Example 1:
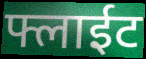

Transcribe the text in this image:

फ्लाईट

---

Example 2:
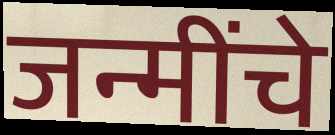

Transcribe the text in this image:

जन्मींचे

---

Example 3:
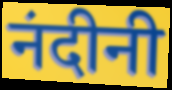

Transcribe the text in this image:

नंदीनी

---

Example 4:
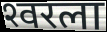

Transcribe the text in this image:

श्वरला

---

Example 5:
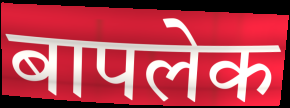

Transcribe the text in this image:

बापलेक